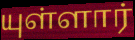
யுள்ளார்